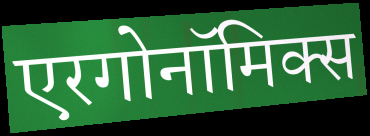
एरगोनॉमिक्स